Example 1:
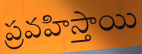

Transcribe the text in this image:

ప్రవహిస్తాయి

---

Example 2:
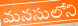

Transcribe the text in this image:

మనసులోని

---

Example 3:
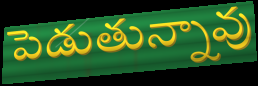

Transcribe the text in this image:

పెడుతున్నావు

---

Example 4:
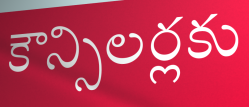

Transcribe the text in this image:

కౌన్సిలర్లకు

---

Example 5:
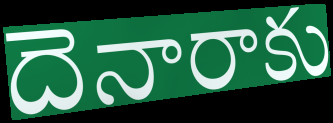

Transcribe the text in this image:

దెనారాకు